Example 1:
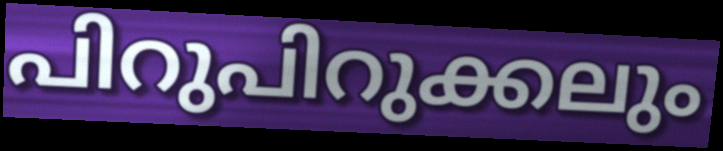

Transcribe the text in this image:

പിറുപിറുക്കലും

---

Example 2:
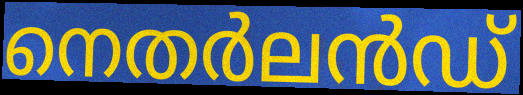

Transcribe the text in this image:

നെതർലൻഡ്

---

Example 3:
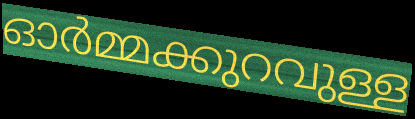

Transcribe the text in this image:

ഓർമ്മക്കുറവുള്ള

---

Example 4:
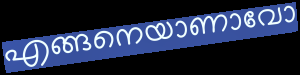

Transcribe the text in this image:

എങ്ങനെയാണാവോ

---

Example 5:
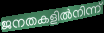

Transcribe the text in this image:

ജനതകളിൽനിന്ന്